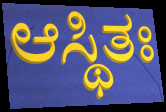
ಆಸ್ಥಿತಃ